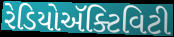
રેડિયોઍક્ટિવિટી